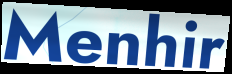
Menhir